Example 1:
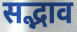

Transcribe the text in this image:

सद्भाव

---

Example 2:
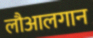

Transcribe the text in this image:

लौआलगान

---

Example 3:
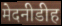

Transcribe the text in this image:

मेदनीडीह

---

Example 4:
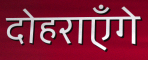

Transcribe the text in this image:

दोहराएँगे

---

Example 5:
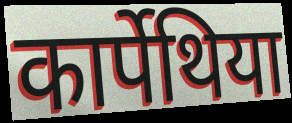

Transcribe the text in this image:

कार्पेथिया